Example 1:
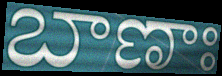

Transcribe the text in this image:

బాణాః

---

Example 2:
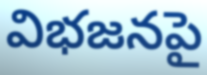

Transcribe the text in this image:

విభజనపై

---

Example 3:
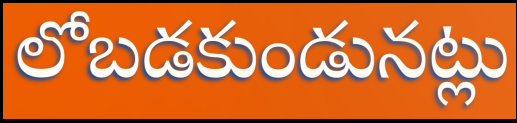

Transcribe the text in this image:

లోబడకుండునట్లు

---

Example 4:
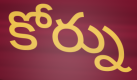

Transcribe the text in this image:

కోర్ను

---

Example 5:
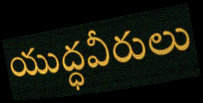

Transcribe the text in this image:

యుద్ధవీరులు